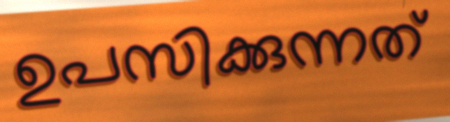
ഉപസിക്കുന്നത്